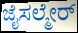
ಜೈಸಲ್ಮೇರ್